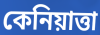
কেনিয়াত্তা